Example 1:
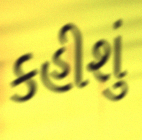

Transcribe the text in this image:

કહીશું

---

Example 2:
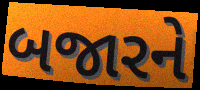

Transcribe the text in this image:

બજારને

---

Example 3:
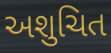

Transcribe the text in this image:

અશુચિત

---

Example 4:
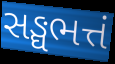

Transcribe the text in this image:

સઙ્ઘભત્તં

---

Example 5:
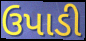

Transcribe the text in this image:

ઉપાડી